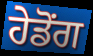
ਹੇਡੋਂਗ